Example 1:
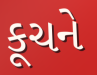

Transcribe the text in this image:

કૂચને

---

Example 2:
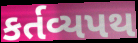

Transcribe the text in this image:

કર્તવ્યપથ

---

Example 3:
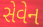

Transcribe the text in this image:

સેવેન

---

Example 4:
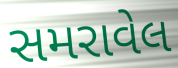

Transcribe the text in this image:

સમરાવેલ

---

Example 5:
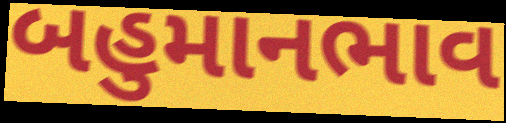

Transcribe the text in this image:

બહુમાનભાવ